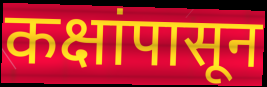
कक्षांपासून